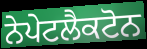
ਨੇਪੇਟਲੈਕਟੋਨ